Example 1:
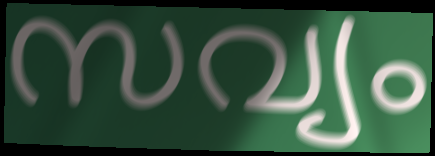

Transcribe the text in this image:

സവ്യം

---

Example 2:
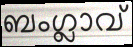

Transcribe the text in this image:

ബംഗ്ലാവ്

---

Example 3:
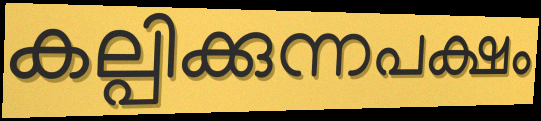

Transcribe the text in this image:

കല്പിക്കുന്നപക്ഷം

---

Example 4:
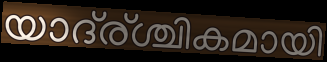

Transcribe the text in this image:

യാദ്ര്ശ്ചികമായി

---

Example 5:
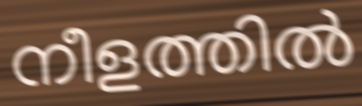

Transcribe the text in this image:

നീളത്തിൽ